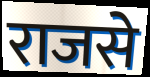
राजसे